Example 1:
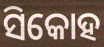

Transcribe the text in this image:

ସିକୋହ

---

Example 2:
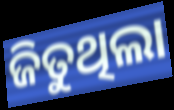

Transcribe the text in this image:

ଜିତୁଥିଲା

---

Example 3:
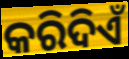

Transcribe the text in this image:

କରିଦିଏଁ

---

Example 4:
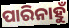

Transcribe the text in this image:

ପାରିନାହୁଁ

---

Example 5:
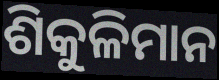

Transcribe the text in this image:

ଶିକୁଳିମାନ